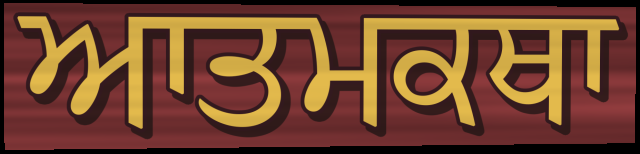
ਆਤਮਕਥਾ